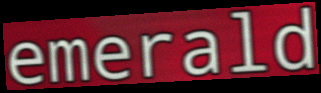
emerald